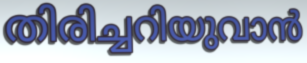
തിരിച്ചറിയുവാൻ